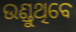
ଉଣ୍ଡୁଥିବେ